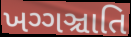
ખગ્ગઞ્ચાતિ